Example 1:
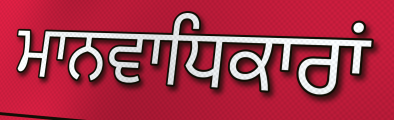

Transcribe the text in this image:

ਮਾਨਵਾਧਿਕਾਰਾਂ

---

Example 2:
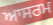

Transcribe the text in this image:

ਆਸਰਮ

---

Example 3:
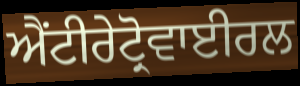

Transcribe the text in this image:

ਐਂਟੀਰੇਟ੍ਰੋਵਾਈਰਲ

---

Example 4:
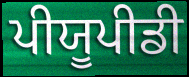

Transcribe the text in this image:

ਪੀਯੂਪੀਡੀ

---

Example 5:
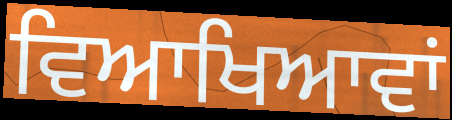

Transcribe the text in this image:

ਵਿਆਖਿਆਵਾਂ